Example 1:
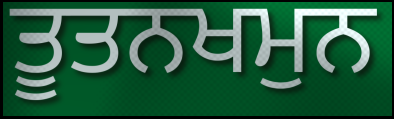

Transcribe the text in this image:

ਤੂਤਨਖਮੁਨ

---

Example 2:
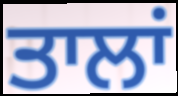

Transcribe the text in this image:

ਤਾਲਾਂ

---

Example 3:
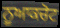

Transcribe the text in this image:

ਨੂਆਕਚੋਟ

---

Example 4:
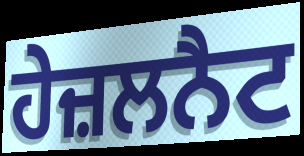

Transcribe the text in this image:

ਹੇਜ਼ਲਨੈਟ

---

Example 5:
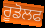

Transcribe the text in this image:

ਰੂਡੋਲਫ